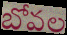
బోవల